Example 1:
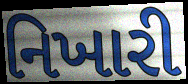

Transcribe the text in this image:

નિખારી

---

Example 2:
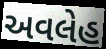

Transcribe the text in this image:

અવલેહ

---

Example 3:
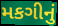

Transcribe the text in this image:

મકગીનું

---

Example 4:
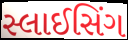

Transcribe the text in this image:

સ્લાઈસિંગ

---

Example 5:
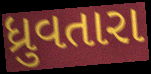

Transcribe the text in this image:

ધ્રુવતારા